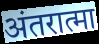
अंतरात्मा